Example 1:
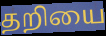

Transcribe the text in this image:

தறியை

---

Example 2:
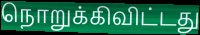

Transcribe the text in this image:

நொறுக்கிவிட்டது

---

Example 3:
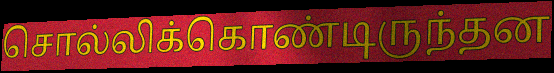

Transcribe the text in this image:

சொல்லிக்கொண்டிருந்தன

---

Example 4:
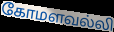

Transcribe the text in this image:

கோமளவல்லி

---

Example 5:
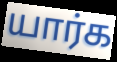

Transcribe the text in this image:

யார்க